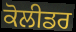
ਕੋਲੀਡਰ